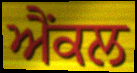
ਐਂਕਲ